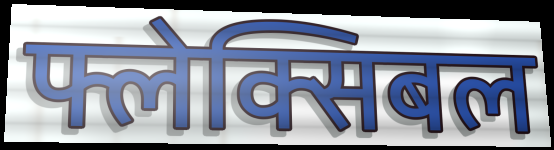
फ्लेक्सिबल